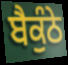
ਬੈਕੁੰਠੇ